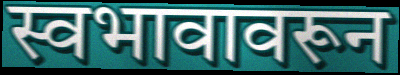
स्वभावावरून